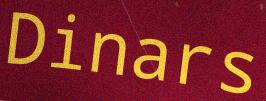
Dinars